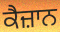
ਕੈਜ਼ਾਨ